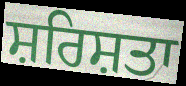
ਸ਼ਰਿਸ਼ਤਾ